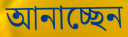
আনাচ্ছেন